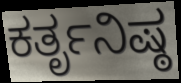
ಕರ್ತೃನಿಷ್ಠ